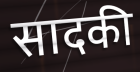
सादकी